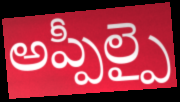
అప్పీల్పై